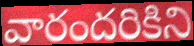
వారందరికిని